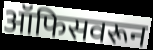
ऑफिसवरून